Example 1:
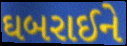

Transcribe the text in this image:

ઘબરાઈને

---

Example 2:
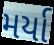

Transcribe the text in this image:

મર્યા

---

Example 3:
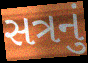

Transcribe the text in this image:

સત્રનું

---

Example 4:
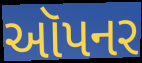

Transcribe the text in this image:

ઑપનર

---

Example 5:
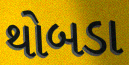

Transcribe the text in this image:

થોબડા